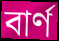
বাৰ্ণ